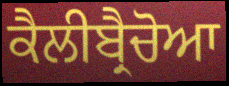
ਕੈਲੀਬ੍ਰੈਚੋਆ